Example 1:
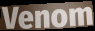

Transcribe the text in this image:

Venom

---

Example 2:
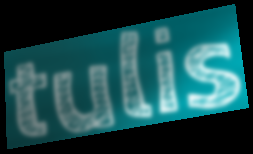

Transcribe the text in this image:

tulis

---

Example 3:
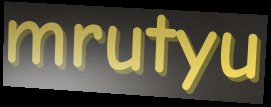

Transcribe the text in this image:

mrutyu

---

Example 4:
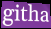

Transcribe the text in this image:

githa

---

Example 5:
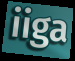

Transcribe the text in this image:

iiga